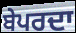
ਬੇਪਰਦਾ